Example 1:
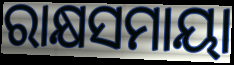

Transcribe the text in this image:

ରାକ୍ଷସମାୟା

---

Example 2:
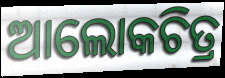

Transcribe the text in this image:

ଆଲୋକଚିତ୍ର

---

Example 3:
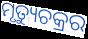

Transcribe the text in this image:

ମୃତ୍ୟୁଚକ୍ରର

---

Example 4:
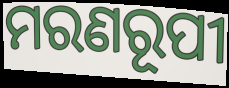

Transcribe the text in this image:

ମରଣରୂପୀ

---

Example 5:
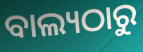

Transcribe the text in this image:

ବାଲ୍ୟଠାରୁ